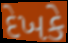
દેખકે